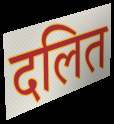
दलित